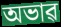
অভাৱ